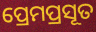
ପ୍ରେମପ୍ରସୂତ